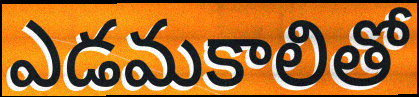
ఎడమకాలితో